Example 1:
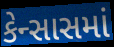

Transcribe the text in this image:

કેન્સાસમાં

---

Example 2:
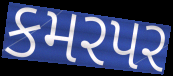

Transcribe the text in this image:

કમરપર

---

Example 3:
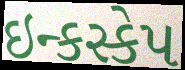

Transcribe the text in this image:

ઇન્કસ્કેપ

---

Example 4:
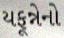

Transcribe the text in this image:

યફૂન્નેનો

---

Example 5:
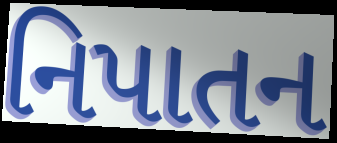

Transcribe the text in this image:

નિપાતન